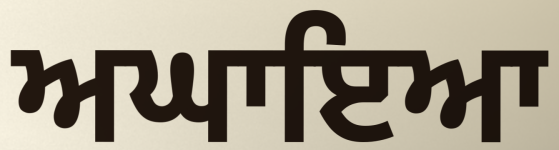
ਅਘਾਇਆ